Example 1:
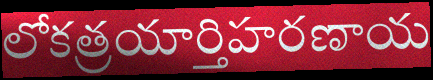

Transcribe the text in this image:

లోకత్రయార్తిహరణాయ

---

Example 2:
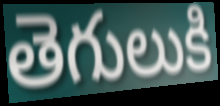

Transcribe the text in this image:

తెగులుకి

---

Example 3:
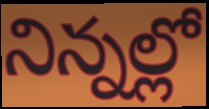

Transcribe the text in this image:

నిన్నల్లో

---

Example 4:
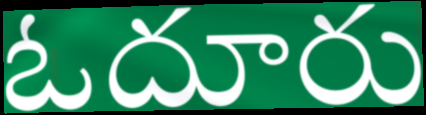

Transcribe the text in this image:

ఓదూరు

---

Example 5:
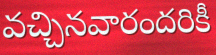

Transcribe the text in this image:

వచ్చినవారందరికీ